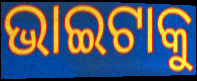
ଭାଇଟାକୁ